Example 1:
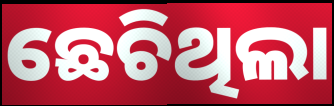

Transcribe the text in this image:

ଛେଚିଥିଲା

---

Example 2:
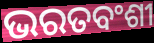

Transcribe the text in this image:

ଭରତବଂଶୀ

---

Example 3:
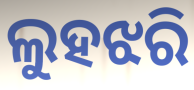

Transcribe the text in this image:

ଲୁହଝରି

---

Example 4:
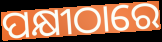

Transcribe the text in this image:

ପକ୍ଷୀଠାରେ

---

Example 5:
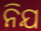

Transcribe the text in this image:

ନିଯ